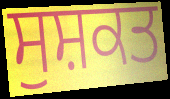
ਸੁਸ਼ਕਤ